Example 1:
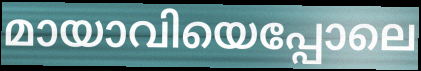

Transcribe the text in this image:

മായാവിയെപ്പോലെ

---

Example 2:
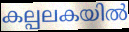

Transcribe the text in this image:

കല്പലകയിൽ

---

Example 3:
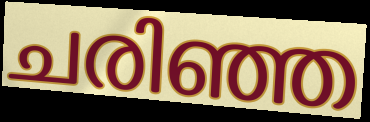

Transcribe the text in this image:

ചരിഞ്ഞ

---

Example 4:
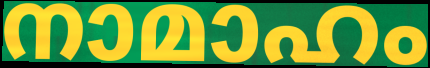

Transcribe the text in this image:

നാമാഹം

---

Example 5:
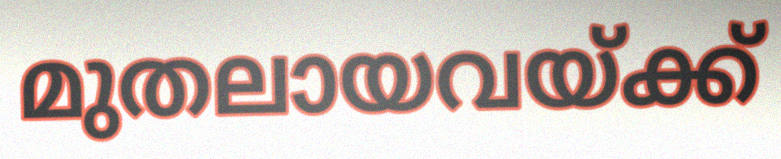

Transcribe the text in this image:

മുതലായവയ്ക്ക്